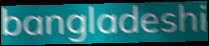
bangladeshi